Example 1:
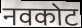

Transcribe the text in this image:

नवकोट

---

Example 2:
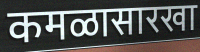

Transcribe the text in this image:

कमळासारखा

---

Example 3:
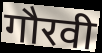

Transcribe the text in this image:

गौरवी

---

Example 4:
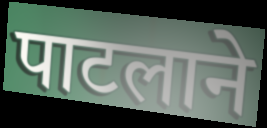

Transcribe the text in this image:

पाटलाने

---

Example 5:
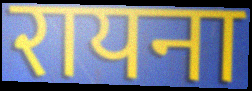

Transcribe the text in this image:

रायना